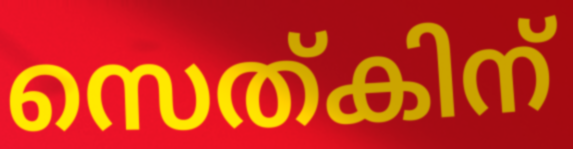
സെത്കിന്